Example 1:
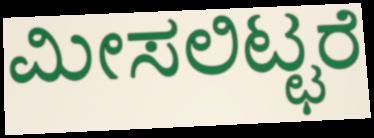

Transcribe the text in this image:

ಮೀಸಲಿಟ್ಟರೆ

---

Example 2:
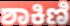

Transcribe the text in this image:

ಶಾಕಿಣಿ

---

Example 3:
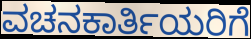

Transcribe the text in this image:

ವಚನಕಾರ್ತಿಯರಿಗೆ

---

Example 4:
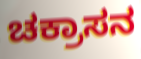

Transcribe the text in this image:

ಚಕ್ರಾಸನ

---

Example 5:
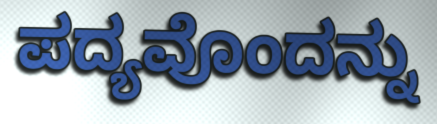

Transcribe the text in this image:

ಪದ್ಯವೊಂದನ್ನು